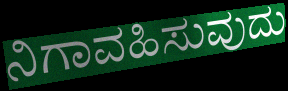
ನಿಗಾವಹಿಸುವುದು